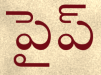
పైప్